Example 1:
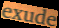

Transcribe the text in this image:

exude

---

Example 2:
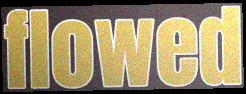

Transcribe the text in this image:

flowed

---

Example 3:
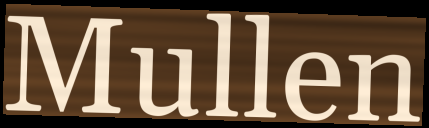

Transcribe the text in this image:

Mullen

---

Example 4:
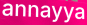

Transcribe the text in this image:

annayya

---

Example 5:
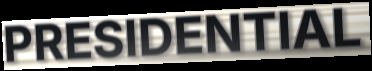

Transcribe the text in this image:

PRESIDENTIAL